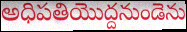
అధిపతియొద్దనుండెను